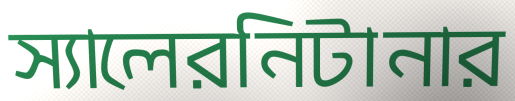
স্যালেরনিটানার